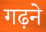
गढ़ने